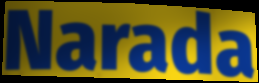
Narada